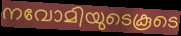
നവോമിയുടെകൂടെ